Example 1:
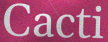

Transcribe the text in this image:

Cacti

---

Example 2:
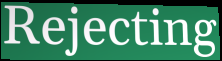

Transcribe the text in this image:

Rejecting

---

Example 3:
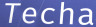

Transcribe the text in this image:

Techa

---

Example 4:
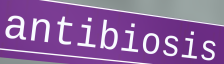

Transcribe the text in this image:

antibiosis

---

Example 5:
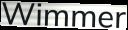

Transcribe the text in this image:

Wimmer